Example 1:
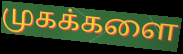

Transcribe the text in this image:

முகக்களை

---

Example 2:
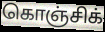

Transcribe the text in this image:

கொஞ்சிக்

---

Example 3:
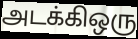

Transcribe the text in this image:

அடக்கிஒரு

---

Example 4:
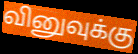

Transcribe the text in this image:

வினுவுக்கு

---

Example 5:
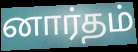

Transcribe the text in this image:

னார்தம்